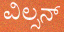
ವಿಲ್ಸನ್